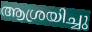
ആശ്രയിച്ചു